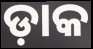
ଡ଼ାକ